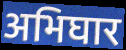
अभिघार